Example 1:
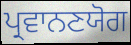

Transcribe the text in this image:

ਪ੍ਰਵਾਨਣਯੋਗ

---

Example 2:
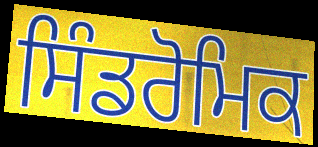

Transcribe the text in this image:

ਸਿੰਡਰੋਮਿਕ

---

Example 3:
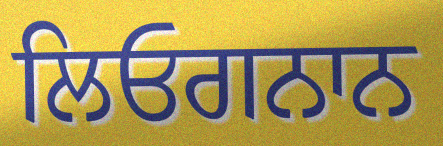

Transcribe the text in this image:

ਲਿਓਗਨਾਨ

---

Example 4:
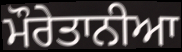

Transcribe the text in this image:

ਮੌਰੇਤਾਨੀਆ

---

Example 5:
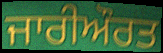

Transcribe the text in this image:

ਜਾਰੀਔਰਤ